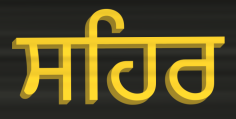
ਸਹਿਰ